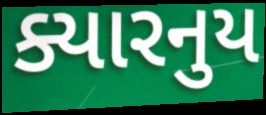
ક્યારનુય